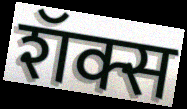
शॅक्स